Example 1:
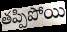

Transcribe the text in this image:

తప్పిపోయి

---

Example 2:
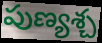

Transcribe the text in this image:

పుణ్యశ్చ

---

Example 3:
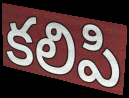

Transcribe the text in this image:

కలిపి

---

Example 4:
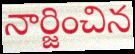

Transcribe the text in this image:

నార్జించిన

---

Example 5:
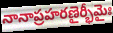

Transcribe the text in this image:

నానాప్రహరణైర్భీమైః